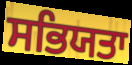
ਸਭਿਯਤਾ